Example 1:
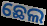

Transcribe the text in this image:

ଛେଲ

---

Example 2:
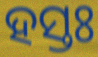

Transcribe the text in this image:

ହସ୍ତଃ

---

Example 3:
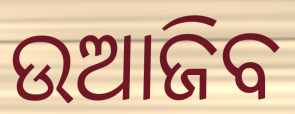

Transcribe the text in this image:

ଉଆଜିବ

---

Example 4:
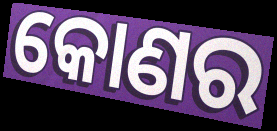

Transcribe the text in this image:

କୋଣର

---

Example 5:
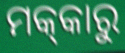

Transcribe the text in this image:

ମକ୍‌କାରୁ